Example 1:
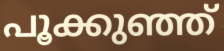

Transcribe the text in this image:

പൂക്കുഞ്ഞ്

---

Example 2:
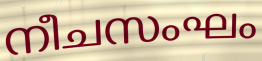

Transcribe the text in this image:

നീചസംഘം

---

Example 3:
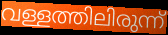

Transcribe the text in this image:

വള്ളത്തിലിരുന്ന്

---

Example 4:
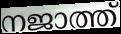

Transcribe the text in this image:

നജാത്ത്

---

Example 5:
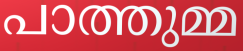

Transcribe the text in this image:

പാത്തുമ്മ